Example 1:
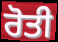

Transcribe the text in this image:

ਰੋਤੀ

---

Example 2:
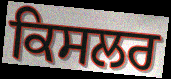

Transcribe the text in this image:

ਕਿਸਲਰ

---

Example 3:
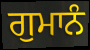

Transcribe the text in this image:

ਗੁਮਾਨੰ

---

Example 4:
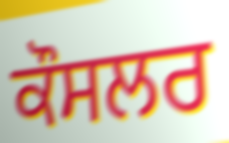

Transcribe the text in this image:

ਕੌਸਲਰ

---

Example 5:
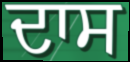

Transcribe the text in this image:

ਦਾਸ